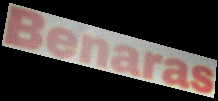
Benaras